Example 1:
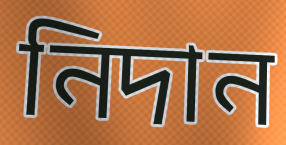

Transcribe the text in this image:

নিদান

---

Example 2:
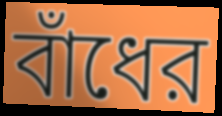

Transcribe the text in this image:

বাঁধের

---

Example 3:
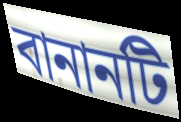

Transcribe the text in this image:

বানানটি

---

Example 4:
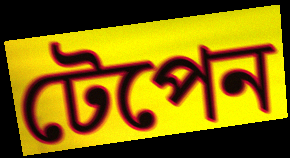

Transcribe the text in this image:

টেপেন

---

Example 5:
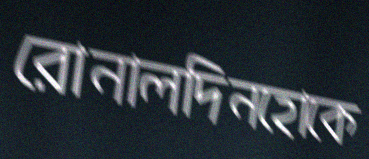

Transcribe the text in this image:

রোনালদিনহোকে